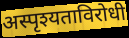
अस्पृश्यताविरोधी